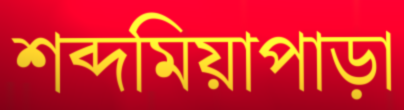
শব্দমিয়াপাড়া